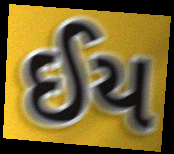
ઈય